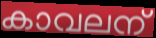
കാവലന്